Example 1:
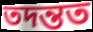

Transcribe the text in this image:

তদন্তত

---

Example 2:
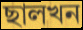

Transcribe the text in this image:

ছালখন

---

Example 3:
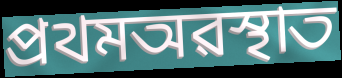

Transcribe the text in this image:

প্ৰথমঅৱস্থাত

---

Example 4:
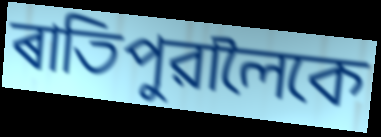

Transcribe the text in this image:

ৰাতিপুৱালৈকে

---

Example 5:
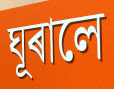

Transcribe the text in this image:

ঘূৰালে